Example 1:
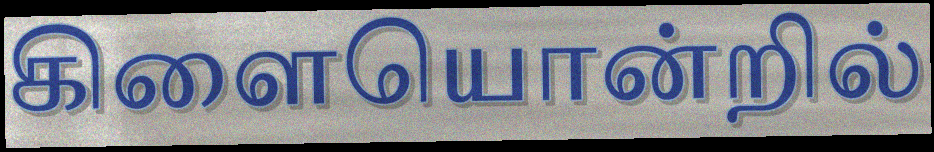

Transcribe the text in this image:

கிளையொன்றில்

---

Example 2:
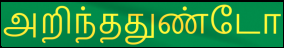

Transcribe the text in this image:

அறிந்ததுண்டோ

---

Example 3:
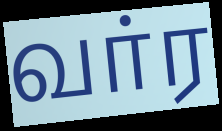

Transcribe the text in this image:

வர்ர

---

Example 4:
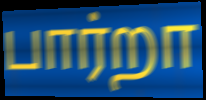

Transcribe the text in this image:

பார்றா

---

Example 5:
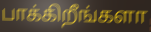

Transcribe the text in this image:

பாக்கிறீங்களா